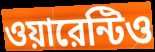
ওয়ারেন্টিও